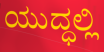
ಯುದ್ಧಲ್ಲಿ